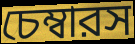
চেম্বারস